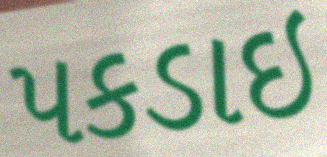
પકડાઇ